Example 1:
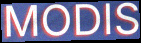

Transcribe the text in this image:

MODIS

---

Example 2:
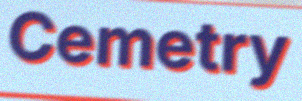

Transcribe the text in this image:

Cemetry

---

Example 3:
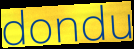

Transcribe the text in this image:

dondu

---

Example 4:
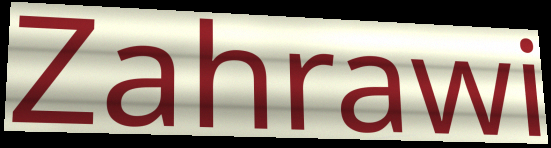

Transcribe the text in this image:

Zahrawi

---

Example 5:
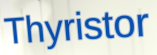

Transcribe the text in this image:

Thyristor